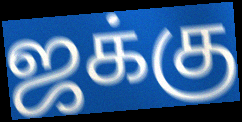
ஜக்கு